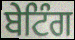
ਬੇਟਿੰਗ